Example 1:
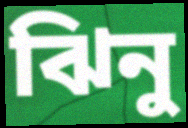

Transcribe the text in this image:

ঝিনু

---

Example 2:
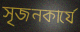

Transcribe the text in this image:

সৃজনকার্যে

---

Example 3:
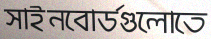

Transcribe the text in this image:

সাইনবোর্ডগুলোতে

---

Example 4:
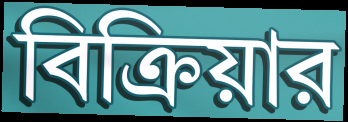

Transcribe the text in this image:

বিক্রিয়ার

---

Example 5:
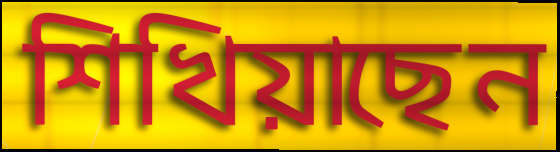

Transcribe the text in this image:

শিখিয়াছেন